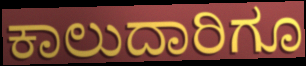
ಕಾಲುದಾರಿಗೂ